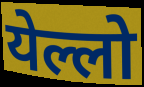
येल्लो